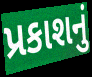
પ્રકાશનું